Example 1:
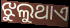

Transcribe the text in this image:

ଝୁଲୁଥାଏ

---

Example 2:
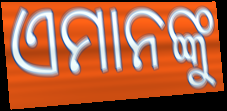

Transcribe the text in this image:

ଏମାନଙ୍କୁ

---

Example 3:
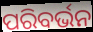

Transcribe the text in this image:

ପରିବର୍ଭନ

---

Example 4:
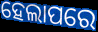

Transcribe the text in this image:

ହେଲାପରେ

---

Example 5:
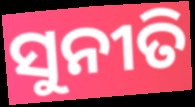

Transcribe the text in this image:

ସୁନୀତି